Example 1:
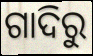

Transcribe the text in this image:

ଗାଦିରୁ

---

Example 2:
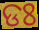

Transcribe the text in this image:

ଡଃ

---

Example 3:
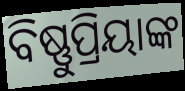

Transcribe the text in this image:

ବିଷ୍ଣୁପ୍ରିୟାଙ୍କ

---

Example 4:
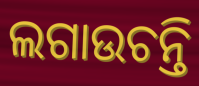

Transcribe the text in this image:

ଲଗାଉଚନ୍ତି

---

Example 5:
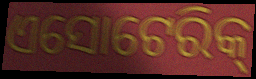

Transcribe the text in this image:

ଏସୋଟେରିକ୍